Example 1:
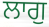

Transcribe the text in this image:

ਲਾਗੁ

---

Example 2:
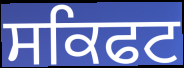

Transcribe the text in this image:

ਸਕਿਫਟ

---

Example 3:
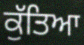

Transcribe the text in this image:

ਕੁੱਤਿਆ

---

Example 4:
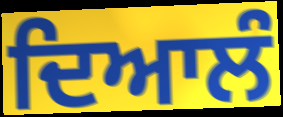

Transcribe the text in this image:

ਦਿਆਲੰ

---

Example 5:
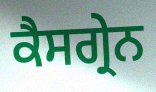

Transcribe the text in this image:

ਕੈਸਗ੍ਰੇਨ